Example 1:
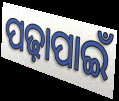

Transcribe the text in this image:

ପଢ଼ାପାଇଁ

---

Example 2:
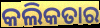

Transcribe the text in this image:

କଲିକତାର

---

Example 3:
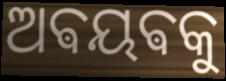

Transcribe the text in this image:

ଅଵୟଵକୁ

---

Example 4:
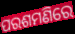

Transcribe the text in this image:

ପରଶମଣିରେ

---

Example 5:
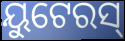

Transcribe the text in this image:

ୟୁଟେରସ୍